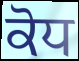
ਕੋਧ